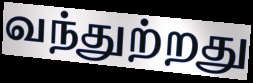
வந்துற்றது